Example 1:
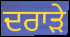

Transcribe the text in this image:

ਦਰਾੜੇ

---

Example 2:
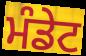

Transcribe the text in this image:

ਮੰਡੇਟ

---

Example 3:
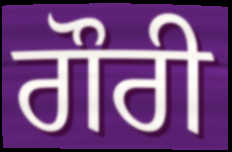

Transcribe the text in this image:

ਗੌਰੀ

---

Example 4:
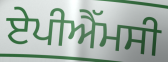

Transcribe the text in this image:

ਏਪੀਐੱਮਸੀ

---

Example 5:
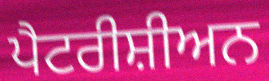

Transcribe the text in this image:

ਪੈਟਰੀਸ਼ੀਅਨ